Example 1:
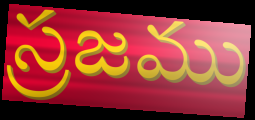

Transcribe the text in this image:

స్రజము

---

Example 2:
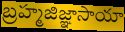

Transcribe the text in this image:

బ్రహ్మజిజ్ఞాసాయా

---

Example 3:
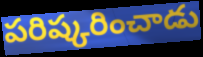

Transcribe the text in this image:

పరిష్కరించాడు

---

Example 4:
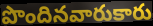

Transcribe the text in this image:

పొందినవారుకారు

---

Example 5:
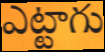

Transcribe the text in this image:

ఎట్టాగు